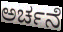
ಅರ್ಚನೆ